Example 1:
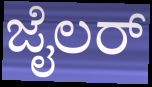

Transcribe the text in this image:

ಜೈಲರ್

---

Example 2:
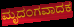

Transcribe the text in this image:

ಮೃದಂಗವಾದಕ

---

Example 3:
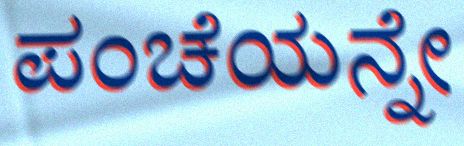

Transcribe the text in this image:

ಪಂಚೆಯನ್ನೇ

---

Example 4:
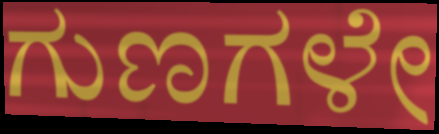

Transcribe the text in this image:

ಗುಣಗಳೇ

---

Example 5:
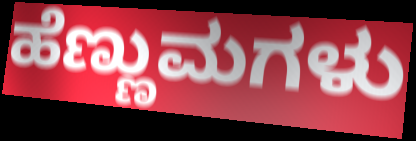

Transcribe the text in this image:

ಹೆಣ್ಣುಮಗಳು